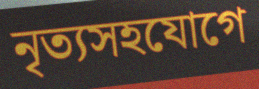
নৃত্যসহযোগে